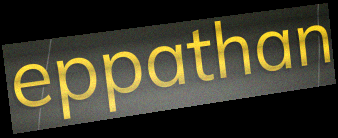
eppathan